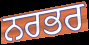
ਨਰਭਰ